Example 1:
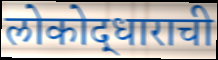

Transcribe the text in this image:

लोकोद्धाराची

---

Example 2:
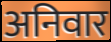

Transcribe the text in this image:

अनिवार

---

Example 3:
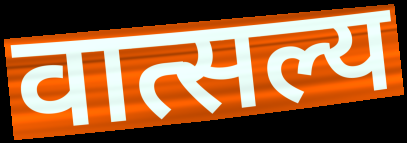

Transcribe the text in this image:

वात्सल्य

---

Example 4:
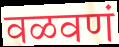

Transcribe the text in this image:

वळवणं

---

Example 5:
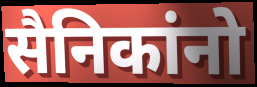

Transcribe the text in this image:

सैनिकांनो